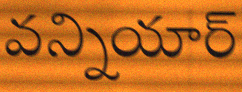
వన్నియార్